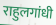
राहुलगांधी